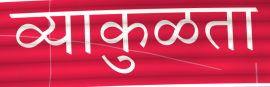
व्याकुळता